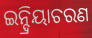
ଇନ୍ଦ୍ରିୟାଚରଣ